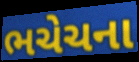
ભચેચના